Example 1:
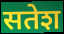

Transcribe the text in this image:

सतेश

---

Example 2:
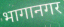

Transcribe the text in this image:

भागानगर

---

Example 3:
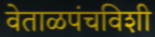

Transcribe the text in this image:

वेताळपंचविशी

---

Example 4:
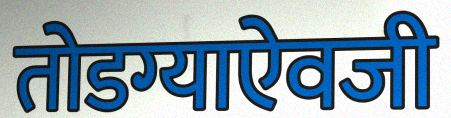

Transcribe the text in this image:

तोडग्याऐवजी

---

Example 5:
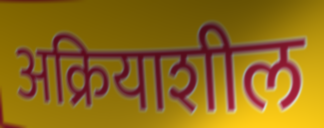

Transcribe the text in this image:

अक्रियाशील